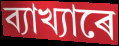
ব্যাখ্যাৰে